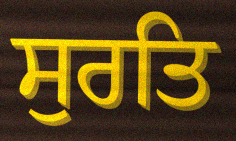
ਸੁਰਤਿ